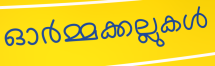
ഓർമ്മക്കല്ലുകൾ